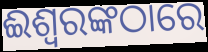
ଈଶ୍ୱରଙ୍କଠାରେ